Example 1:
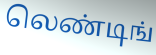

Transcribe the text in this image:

லெண்டிங்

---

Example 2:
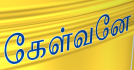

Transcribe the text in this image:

கேள்வனே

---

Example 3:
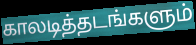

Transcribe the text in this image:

காலடித்தடங்களும்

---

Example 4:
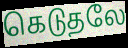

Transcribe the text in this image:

கெடுதலே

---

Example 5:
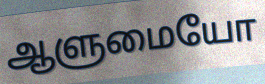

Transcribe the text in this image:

ஆளுமையோ